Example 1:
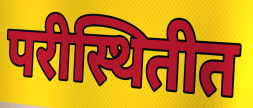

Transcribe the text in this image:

परीस्थितीत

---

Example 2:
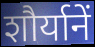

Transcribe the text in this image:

शौर्यानें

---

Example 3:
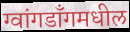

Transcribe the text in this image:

ग्वांगडाँगमधील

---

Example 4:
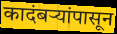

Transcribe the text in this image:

कादंबऱ्यांपासून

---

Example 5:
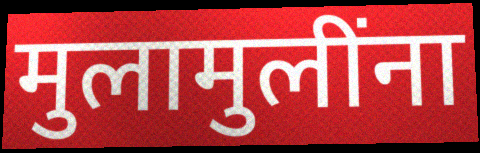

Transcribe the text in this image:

मुलामुलींना